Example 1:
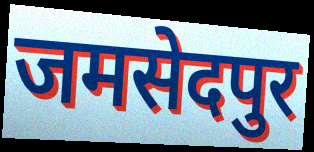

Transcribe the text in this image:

जमसेदपुर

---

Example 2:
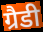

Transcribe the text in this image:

ग्रैडी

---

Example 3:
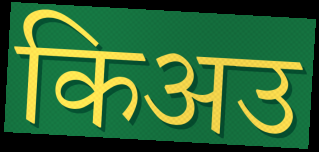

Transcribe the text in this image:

किअउ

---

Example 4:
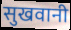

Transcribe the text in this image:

सुखवानी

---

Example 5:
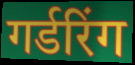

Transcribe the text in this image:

गर्डरिंग